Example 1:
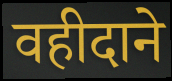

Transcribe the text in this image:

वहीदाने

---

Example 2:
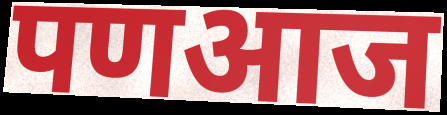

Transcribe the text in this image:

पणआज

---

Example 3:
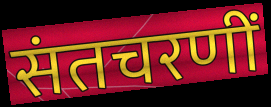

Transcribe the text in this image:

संतचरणीं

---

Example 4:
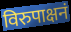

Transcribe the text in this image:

विरुपाक्षनं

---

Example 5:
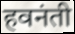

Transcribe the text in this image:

हवनंती